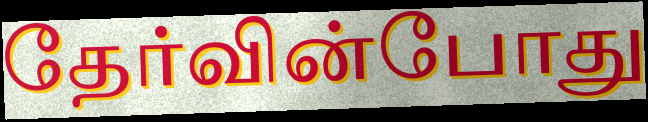
தேர்வின்போது